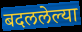
बदललेल्या